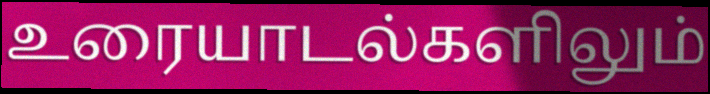
உரையாடல்களிலும்